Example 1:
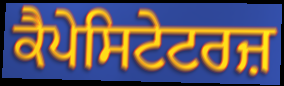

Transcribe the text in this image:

ਕੈਪੇਸਿਟੇਟਰਜ਼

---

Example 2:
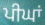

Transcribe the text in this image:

ਪੀਘਾਂ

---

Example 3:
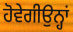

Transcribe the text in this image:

ਹੋਵੇਗੀਉਨ੍ਹਾਂ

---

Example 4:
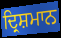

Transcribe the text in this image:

ਦ੍ਰਿਸ਼ਮਾਨ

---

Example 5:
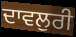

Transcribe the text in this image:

ਦਾਵਲੁਰੀ